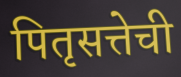
पितृसत्तेची